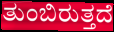
ತುಂಬಿರುತ್ತದೆ